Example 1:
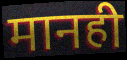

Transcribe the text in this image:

मानही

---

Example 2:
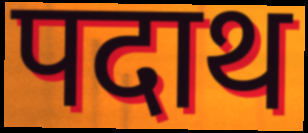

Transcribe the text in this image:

पदाथ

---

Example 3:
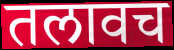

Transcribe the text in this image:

तलावच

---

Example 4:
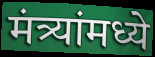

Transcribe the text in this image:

मंत्र्यांमध्ये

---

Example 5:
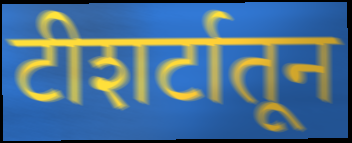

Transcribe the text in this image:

टीशर्टातून